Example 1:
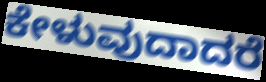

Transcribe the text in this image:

ಕೇಳುವುದಾದರೆ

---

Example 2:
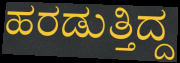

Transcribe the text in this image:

ಹರಡುತ್ತಿದ್ದ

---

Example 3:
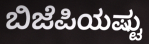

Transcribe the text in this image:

ಬಿಜೆಪಿಯಷ್ಟು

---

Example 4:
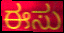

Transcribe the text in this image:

ಈಸು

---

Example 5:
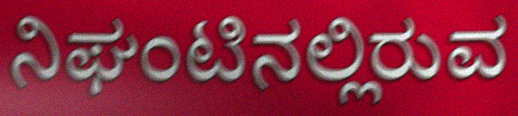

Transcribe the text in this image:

ನಿಘಂಟಿನಲ್ಲಿರುವ